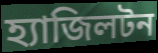
হ্যাজিলটন